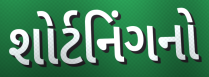
શોર્ટનિંગનો